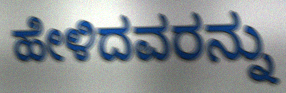
ಹೇಳಿದವರನ್ನು